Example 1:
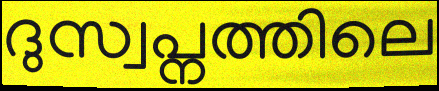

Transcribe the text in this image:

ദുസ്വപ്നത്തിലെ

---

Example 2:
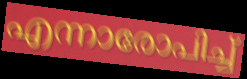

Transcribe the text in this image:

എന്നാരോപിച്ച്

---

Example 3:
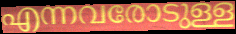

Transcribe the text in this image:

എന്നവരോടുള്ള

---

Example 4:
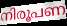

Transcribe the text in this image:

നിരൂപണ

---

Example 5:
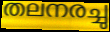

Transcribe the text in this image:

തലനരച്ചു